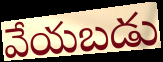
వేయబడు